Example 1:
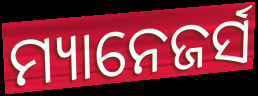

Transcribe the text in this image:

ମ୍ୟାନେଜର୍ସ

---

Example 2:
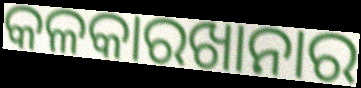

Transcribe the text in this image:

କଳକାରଖାନାର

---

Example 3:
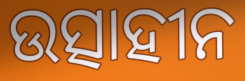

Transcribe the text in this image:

ଉତ୍ସାହୀନ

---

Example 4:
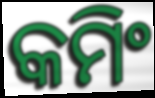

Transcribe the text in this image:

କମିଂ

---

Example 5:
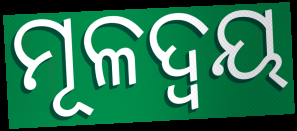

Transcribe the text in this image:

ମୂଳଦ୍ଵୟ